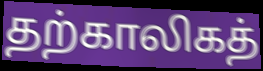
தற்காலிகத்